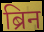
ब्रिन